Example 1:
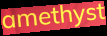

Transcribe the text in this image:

amethyst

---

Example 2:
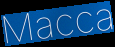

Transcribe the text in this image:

Macca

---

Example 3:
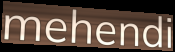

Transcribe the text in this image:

mehendi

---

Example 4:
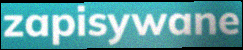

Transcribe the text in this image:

zapisywane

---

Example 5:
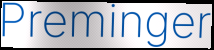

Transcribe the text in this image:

Preminger